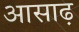
आसाढ़